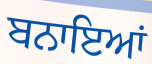
ਬਨਾਇਆਂ